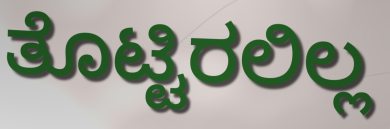
ತೊಟ್ಟಿರಲಿಲ್ಲ